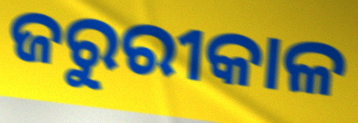
ଜରୁରୀକାଳ